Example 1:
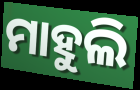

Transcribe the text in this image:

ମାହୁଲି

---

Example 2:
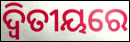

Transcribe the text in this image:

ଦ୍ଵିତୀୟରେ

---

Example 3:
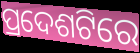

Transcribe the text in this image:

ପ୍ରଦେଶଟିରେ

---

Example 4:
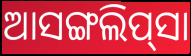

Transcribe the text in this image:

ଆସଙ୍ଗଲିପ୍‌ସା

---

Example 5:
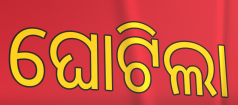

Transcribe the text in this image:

ଘୋଟିଲା